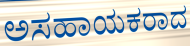
ಅಸಹಾಯಕರಾದ